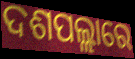
ଦଶପଲ୍ଲାରେ